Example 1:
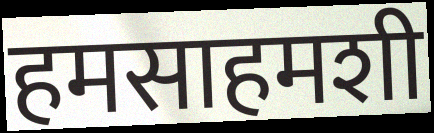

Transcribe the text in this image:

हमसाहमशी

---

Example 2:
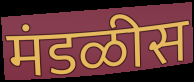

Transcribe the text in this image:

मंडळीस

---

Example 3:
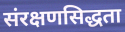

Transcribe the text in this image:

संरक्षणसिद्धता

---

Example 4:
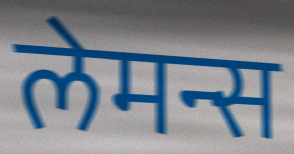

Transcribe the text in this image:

लेमन्स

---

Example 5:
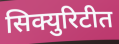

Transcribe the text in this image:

सिक्युरिटीत